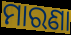
ମାରଣା